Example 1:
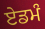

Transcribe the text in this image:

ਏਡਮੰ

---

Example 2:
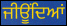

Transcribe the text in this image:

ਜੀਊਂਦਿਆਂ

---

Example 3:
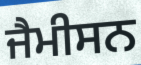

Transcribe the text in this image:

ਜੈਮੀਸਨ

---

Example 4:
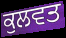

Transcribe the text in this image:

ਕੁਲਵਤ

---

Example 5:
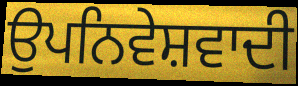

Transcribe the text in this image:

ਉਪਨਿਵੇਸ਼ਵਾਦੀ